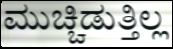
ಮುಚ್ಚಿಡುತ್ತಿಲ್ಲ